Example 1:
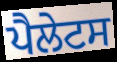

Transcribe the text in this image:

ਪੈਲੇਟਸ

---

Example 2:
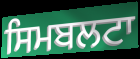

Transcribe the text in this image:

ਸਿਮਬਲਟਾ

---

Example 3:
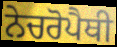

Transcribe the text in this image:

ਨੇਚਰੋਪੈਥੀ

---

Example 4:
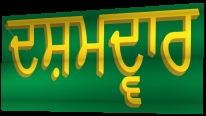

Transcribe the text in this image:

ਦਸ਼ਮਦ੍ਵਾਰ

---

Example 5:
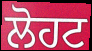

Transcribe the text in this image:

ਲੋਹਟ